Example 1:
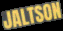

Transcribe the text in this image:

JALTSON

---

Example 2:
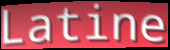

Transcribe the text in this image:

Latine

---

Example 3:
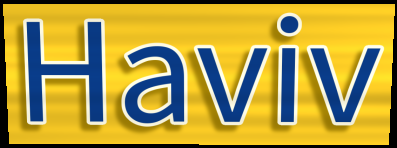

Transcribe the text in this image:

Haviv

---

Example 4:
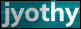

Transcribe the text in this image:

jyothy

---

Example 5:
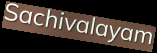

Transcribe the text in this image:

Sachivalayam